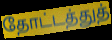
தோட்டத்துத்